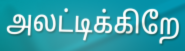
அலட்டிக்கிறே